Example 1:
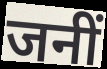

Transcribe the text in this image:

जनीं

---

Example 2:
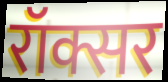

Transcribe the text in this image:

रॉक्सर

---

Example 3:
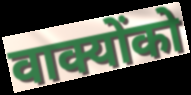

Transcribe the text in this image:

वाक्योंको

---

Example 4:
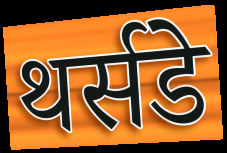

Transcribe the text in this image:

थर्सडे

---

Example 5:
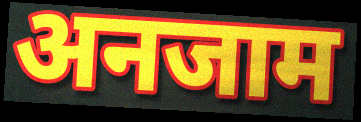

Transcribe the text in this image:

अनजाम